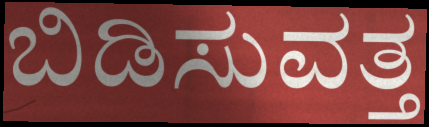
ಬಿಡಿಸುವತ್ತ